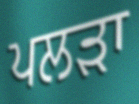
ਪਲੜਾ